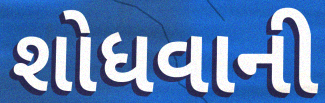
શોધવાની